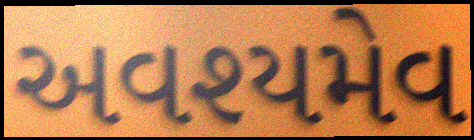
અવશ્યમેવ